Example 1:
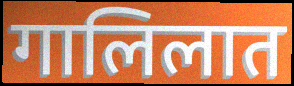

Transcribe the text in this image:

गालिलात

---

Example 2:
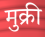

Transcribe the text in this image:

मुक्री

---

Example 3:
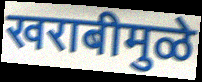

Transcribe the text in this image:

खराबीमुळे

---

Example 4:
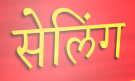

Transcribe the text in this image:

सेलिंग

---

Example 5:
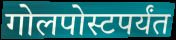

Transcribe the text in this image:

गोलपोस्टपर्यंत